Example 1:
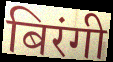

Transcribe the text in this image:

बिरंगी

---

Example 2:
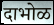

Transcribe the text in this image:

दाभोळ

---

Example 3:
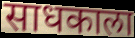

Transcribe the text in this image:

साधकाला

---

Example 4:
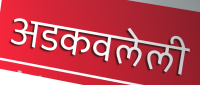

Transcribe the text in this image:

अडकवलेली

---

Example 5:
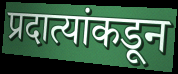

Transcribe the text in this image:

प्रदात्यांकडून